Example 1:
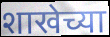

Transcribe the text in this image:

शाखेच्या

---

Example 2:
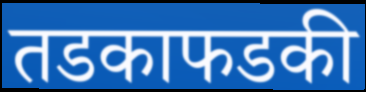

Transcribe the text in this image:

तडकाफडकी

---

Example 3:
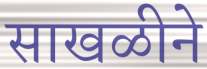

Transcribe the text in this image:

साखळीने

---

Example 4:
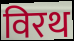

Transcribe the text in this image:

विरथ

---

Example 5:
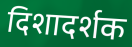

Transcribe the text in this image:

दिशादर्शक